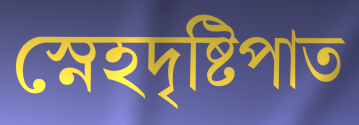
স্নেহদৃষ্টিপাত